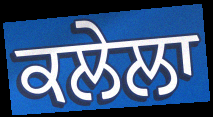
ਕਲੇਲਾ